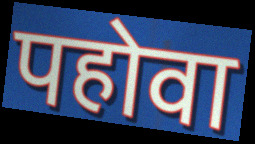
पहोवा